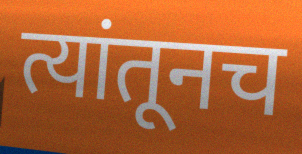
त्यांतूनच